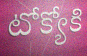
టోక్యోకి